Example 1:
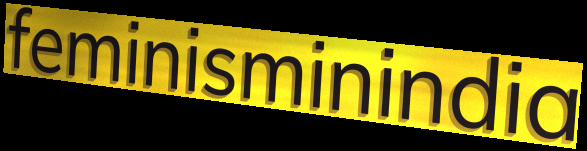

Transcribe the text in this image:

feminisminindia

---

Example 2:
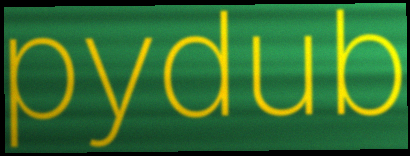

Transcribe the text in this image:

pydub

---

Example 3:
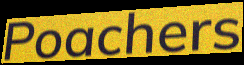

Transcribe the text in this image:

Poachers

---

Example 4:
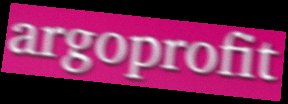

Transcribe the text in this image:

argoprofit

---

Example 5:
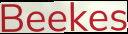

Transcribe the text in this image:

Beekes